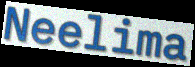
Neelima